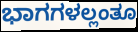
ಭಾಗಗಳಲ್ಲಂತೂ